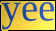
yee